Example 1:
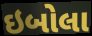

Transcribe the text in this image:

ઇબોલા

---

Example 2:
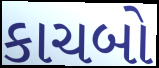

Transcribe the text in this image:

કાચબો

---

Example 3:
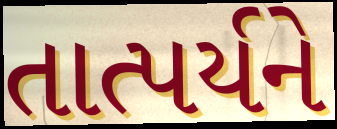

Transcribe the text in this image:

તાત્પર્યને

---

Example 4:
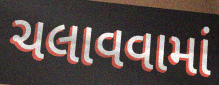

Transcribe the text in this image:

ચલાવવામાં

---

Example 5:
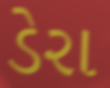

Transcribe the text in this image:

ડેરા